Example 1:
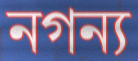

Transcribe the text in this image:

নগন্য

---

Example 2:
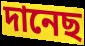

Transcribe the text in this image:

দানেছ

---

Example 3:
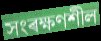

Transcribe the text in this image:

সংৰক্ষণশীল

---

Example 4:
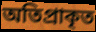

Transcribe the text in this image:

অতিপ্ৰাকৃত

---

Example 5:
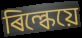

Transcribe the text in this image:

ৰিল্কেয়ে